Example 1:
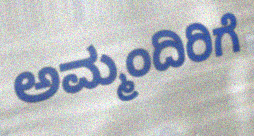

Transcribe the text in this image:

ಅಮ್ಮಂದಿರಿಗೆ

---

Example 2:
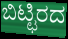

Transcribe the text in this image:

ಬಿಟ್ಟಿರದ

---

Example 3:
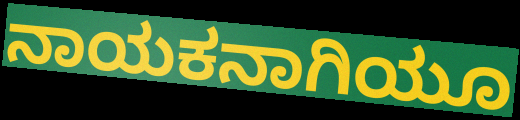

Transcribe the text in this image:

ನಾಯಕನಾಗಿಯೂ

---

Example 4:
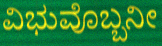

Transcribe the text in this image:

ವಿಭುವೊಬ್ಬನೀ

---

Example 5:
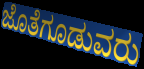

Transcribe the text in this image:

ಜೊತೆಗೂಡುವರು